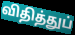
விதித்துப்